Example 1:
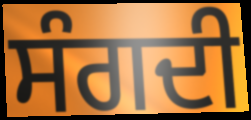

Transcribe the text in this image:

ਸੰਗਦੀ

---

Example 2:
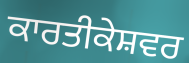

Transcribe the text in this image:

ਕਾਰਤੀਕੇਸ਼ਵਰ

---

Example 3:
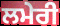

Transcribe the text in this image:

ਲਮੇਰੀ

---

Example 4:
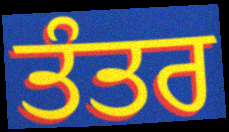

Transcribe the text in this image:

ਤੰਤਰ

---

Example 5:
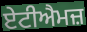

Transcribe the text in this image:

ਏਟੀਐਮਜ਼